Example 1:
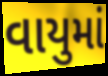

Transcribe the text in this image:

વાયુમાં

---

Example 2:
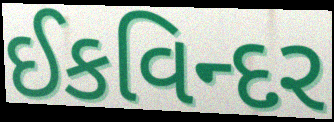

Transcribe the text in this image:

ઈકવિન્દર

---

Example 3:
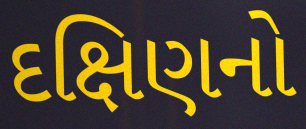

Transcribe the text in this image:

દક્ષિણનો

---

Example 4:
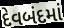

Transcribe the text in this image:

દેવબંદમાં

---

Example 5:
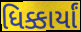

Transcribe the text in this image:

ધિક્કાર્યાં